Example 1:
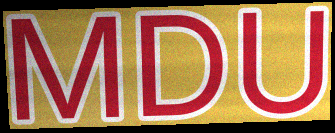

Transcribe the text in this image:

MDU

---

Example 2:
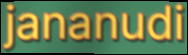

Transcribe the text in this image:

jananudi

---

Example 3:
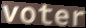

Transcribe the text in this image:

voter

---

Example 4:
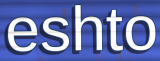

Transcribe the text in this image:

eshto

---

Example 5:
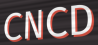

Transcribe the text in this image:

CNCD